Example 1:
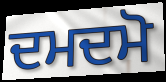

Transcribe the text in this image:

ਦਮਦਮੋ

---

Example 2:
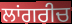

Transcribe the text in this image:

ਲਾਂਗਰੀਚ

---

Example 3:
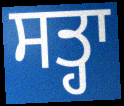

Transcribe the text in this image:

ਸਤ੍ਹਾ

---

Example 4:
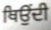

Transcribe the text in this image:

ਥਿਉਂਦੀ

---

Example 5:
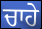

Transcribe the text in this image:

ਚਾਹੇ